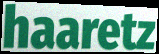
haaretz